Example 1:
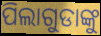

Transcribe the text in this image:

ପିଲାଗୁଡାଙ୍କୁ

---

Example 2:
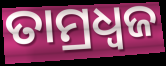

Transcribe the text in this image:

ତାମ୍ରଧ୍ୱଜ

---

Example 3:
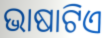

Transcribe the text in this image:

ଭାଷାଟିଏ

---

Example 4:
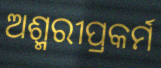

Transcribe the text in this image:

ଅଶ୍ମରୀପ୍ରକର୍ମ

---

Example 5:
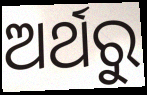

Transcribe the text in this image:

ଅର୍ଥରୁ